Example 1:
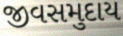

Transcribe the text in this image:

જીવસમુદાય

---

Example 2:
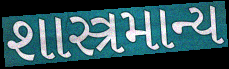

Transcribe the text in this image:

શાસ્ત્રમાન્ય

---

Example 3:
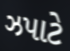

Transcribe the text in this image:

ઝપાટે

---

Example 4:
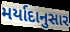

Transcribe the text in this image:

મર્યાદાનુસાર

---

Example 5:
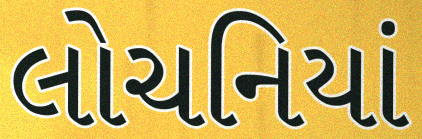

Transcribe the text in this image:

લોચનિયાં